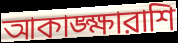
আকাঙ্ক্ষারাশি